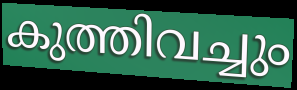
കുത്തിവച്ചും